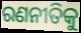
ରଣନୀତିକୁ